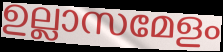
ഉല്ലാസമേളം